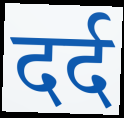
दर्द